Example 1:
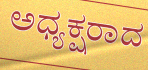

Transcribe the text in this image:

ಅಧ್ಯಕ್ಷರಾದ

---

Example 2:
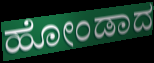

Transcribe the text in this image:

ಹೋಂಡಾದ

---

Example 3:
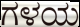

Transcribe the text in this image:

ಗಳಯ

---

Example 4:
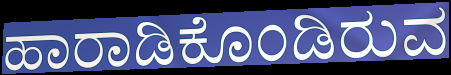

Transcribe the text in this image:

ಹಾರಾಡಿಕೊಂಡಿರುವ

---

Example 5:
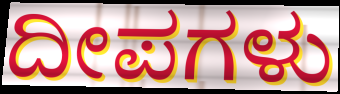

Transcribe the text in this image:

ದೀಪಗಳು